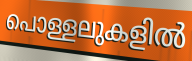
പൊള്ളലുകളിൽ